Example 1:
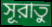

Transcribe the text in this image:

সূরাতু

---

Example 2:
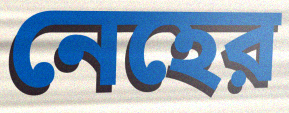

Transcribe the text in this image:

নেহের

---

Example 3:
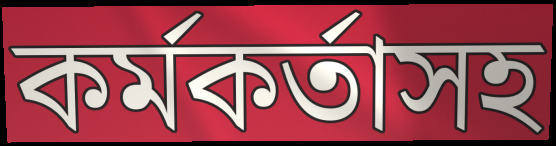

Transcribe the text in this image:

কর্মকর্তাসহ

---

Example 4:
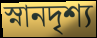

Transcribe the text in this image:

স্নানদৃশ্য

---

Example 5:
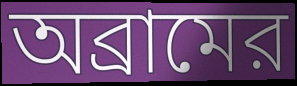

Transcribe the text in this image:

অব্রামের